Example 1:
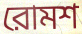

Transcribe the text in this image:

রোমশ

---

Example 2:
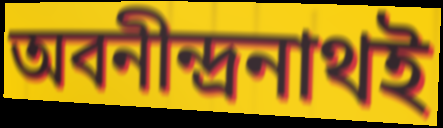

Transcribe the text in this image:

অবনীন্দ্রনাথই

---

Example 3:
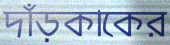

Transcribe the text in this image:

দাঁড়কাকের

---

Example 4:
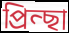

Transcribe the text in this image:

প্রিন্ছা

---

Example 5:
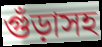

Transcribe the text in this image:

গুঁড়াসহ